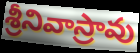
శ్రీనివాస్రావు